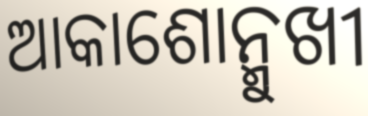
ଆକାଶୋନ୍ମୁଖୀ